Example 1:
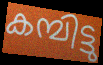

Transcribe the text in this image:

കമ്പിട്ടു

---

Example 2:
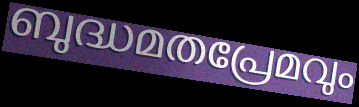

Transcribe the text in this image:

ബുദ്ധമതപ്രേമവും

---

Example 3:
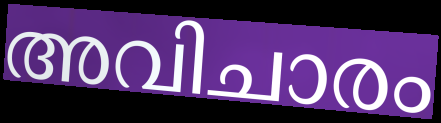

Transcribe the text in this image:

അവിചാരം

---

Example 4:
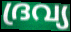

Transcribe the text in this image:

ദ്രവ്യ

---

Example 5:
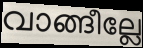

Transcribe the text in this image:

വാങ്ങീല്ലേ